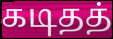
கடிதத்